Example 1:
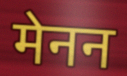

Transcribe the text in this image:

मेनन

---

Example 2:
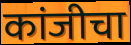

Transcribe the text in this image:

कांजीचा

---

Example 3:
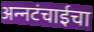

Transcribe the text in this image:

अन्नटंचाईचा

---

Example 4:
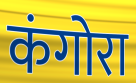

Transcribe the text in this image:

कंगोरा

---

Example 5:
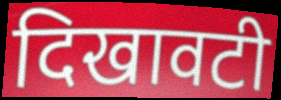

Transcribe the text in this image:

दिखावटी